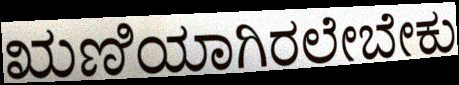
ಋಣಿಯಾಗಿರಲೇಬೇಕು